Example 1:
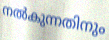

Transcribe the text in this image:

നൽകുന്നതിനും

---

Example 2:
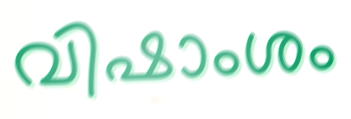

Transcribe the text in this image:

വിഷാംശം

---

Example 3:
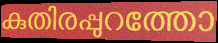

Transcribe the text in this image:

കുതിരപ്പുറത്തോ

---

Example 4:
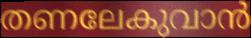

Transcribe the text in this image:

തണലേകുവാൻ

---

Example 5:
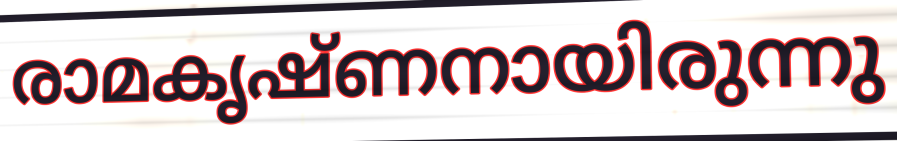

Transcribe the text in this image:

രാമകൃഷ്ണനായിരുന്നു